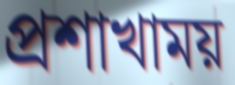
প্রশাখাময়